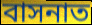
বাসনাত